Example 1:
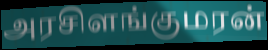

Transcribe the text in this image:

அரசிளங்குமரன்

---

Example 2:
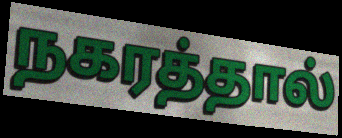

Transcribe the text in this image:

நகரத்தால்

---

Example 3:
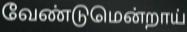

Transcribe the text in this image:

வேண்டுமென்றாய்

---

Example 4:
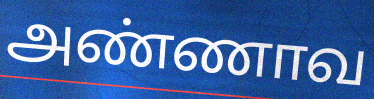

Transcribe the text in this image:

அண்ணாவ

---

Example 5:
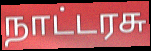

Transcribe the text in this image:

நாட்டரசு